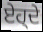
ਏਹ੍ਦੇ